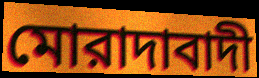
মোরাদাবাদী